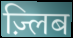
ज़्लिब